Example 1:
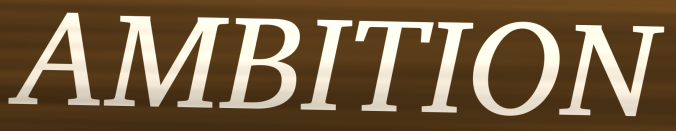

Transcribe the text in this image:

AMBITION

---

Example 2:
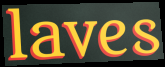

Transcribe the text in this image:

laves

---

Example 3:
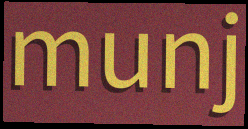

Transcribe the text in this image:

munj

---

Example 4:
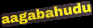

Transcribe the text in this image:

aagabahudu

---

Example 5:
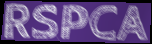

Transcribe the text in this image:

RSPCA